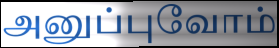
அனுப்புவோம்